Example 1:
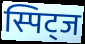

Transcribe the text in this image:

स्पिट्ज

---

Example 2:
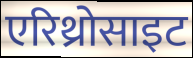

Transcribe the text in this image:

एरिथ्रोसाइट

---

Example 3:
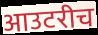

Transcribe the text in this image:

आउटरीच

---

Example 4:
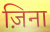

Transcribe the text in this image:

ज़िना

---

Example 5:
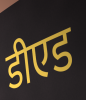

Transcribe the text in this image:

डीएड